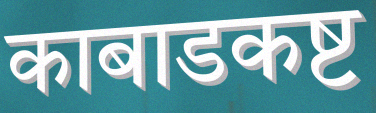
काबाडकष्ट